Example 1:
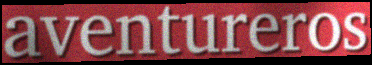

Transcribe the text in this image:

aventureros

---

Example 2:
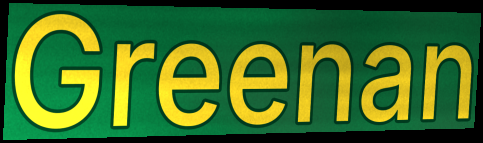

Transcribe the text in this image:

Greenan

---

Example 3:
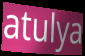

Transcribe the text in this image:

atulya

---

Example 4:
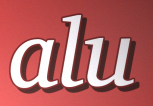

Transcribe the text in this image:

alu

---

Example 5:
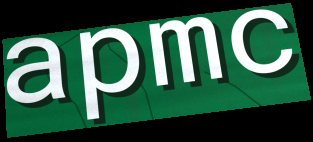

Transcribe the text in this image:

apmc